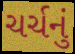
ચર્ચનું